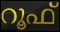
റൂഫ്